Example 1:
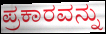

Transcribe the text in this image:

ಪ್ರಕಾರವನ್ನು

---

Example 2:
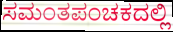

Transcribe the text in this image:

ಸಮಂತಪಂಚಕದಲ್ಲಿ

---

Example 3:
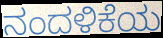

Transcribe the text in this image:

ನಂದಳಿಕೆಯ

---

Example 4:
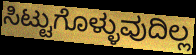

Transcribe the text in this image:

ಸಿಟ್ಟುಗೊಳ್ಳುವುದಿಲ್ಲ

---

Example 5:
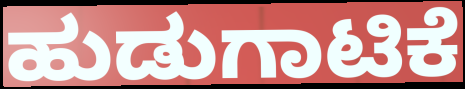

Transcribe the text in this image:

ಹುಡುಗಾಟಿಕೆ